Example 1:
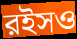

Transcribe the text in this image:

রইসও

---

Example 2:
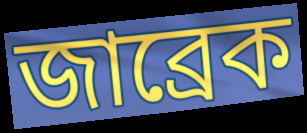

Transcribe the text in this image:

জাব্রেক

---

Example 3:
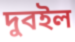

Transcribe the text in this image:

দুবইল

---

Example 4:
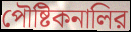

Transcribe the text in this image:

পৌষ্টিকনালির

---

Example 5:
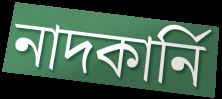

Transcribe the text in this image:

নাদকার্নি